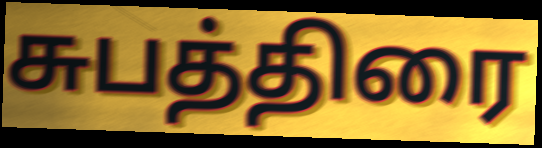
சுபத்திரை